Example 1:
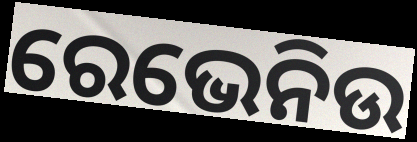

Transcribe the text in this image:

ରେଭେନିଉ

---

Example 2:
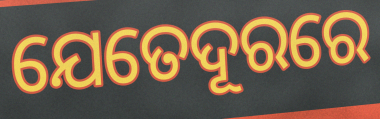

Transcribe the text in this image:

ଯେତେଦୂରରେ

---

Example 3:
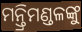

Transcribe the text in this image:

ମନ୍ତ୍ରିମଣ୍ଡଳଙ୍କୁ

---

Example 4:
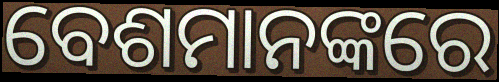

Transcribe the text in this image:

ବେଶମାନଙ୍କରେ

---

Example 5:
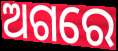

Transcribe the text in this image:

ଅଗରେ